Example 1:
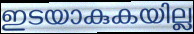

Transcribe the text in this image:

ഇടയാകുകയില്ല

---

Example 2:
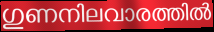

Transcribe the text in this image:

ഗുണനിലവാരത്തിൽ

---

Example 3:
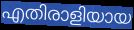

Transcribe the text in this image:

എതിരാളിയായ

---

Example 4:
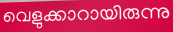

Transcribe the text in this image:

വെളുക്കാറായിരുന്നു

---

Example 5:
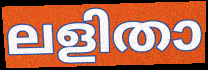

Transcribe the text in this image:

ലളിതാ